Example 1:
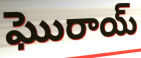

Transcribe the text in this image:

ఘొరాయ్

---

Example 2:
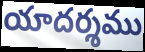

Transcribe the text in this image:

యాదర్శము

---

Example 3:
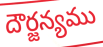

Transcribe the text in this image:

దౌర్జన్యము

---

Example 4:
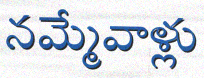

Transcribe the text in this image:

నమ్మేవాళ్లు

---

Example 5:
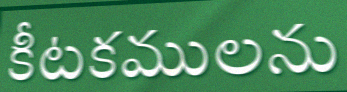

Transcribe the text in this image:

కీటకములను